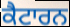
ਕੈਟਾਰਨ